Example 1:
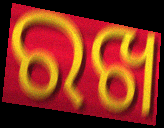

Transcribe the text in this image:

ରଖ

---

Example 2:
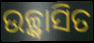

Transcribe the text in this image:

ଉଚ୍ଛ୍ୱାସିତ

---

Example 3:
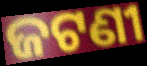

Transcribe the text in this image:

ଜଟଣୀ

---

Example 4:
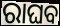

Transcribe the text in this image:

ରାଘବ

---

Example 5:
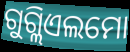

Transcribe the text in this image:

ଗୁଗ୍ଲିଏଲମୋ